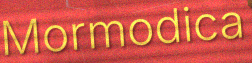
Mormodica